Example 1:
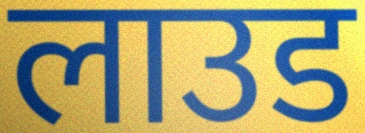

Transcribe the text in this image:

लाउड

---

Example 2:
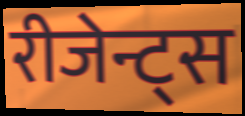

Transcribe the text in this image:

रीजेन्ट्स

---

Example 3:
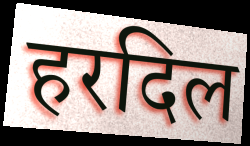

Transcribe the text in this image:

हरदिल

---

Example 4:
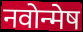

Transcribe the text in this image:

नवोन्‍मेष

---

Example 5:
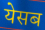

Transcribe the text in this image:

येसब